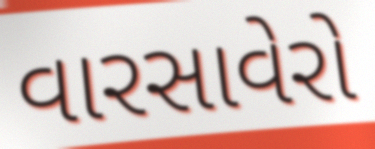
વારસાવેરો